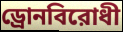
ড্রোনবিরোধী